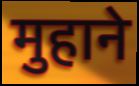
मुहाने